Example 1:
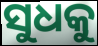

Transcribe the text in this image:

ସୁଧକୁ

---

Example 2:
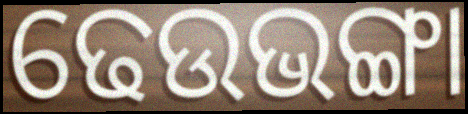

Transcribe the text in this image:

ଢେଉଭଙ୍ଗା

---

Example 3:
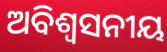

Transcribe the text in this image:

ଅବିଶ୍ବସନୀୟ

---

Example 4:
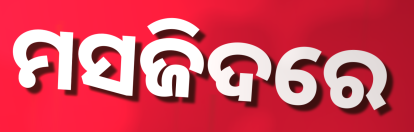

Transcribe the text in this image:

ମସଜିଦରେ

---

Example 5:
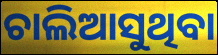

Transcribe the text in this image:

ଚାଲିଆସୁଥିବା